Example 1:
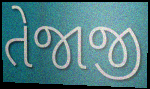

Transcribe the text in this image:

તેજાજી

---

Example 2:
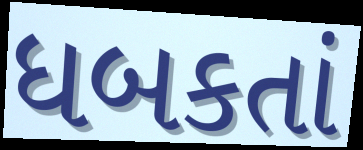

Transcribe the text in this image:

ધબકતાં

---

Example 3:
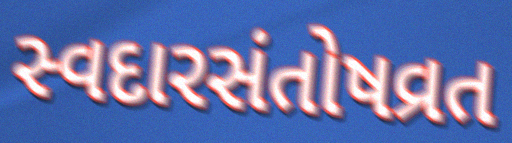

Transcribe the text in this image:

સ્વદારસંતોષવ્રત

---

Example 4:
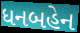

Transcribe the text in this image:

ધનબહેન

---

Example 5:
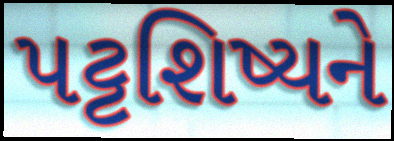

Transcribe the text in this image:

પટ્ટશિષ્યને